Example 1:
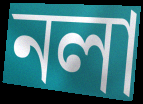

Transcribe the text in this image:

নলা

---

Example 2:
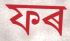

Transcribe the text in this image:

ফৰ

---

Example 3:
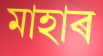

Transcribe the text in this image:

মাহাৰ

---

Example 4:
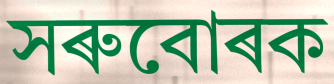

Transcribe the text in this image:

সৰুবোৰক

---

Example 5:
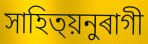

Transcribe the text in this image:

সাহিত্য়নুৰাগী